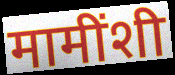
मामींशी